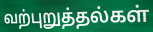
வற்புறுத்தல்கள்